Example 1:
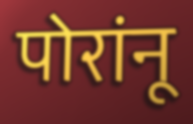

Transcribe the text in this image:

पोरांनू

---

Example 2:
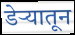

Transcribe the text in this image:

डेऱ्यातून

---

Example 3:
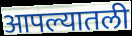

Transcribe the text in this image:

आपल्यातली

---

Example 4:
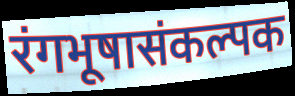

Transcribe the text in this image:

रंगभूषासंकल्पक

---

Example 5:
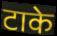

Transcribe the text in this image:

टाके